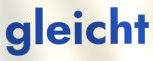
gleicht